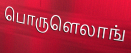
பொருளெலாங்